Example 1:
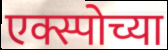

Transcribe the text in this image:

एक्स्पोच्या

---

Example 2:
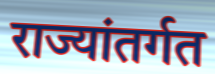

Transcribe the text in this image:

राज्यांतर्गत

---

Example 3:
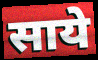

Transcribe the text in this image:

साये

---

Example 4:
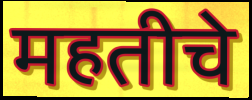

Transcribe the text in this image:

महतीचे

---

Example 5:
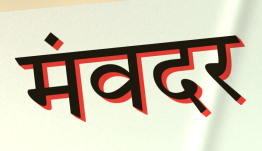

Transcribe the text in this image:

मंवदर